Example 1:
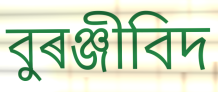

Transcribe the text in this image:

বুৰঞ্জীবিদ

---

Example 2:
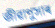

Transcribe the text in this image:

জীৱাণুসাৰ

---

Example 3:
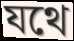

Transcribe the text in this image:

যথে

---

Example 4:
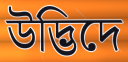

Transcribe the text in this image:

উদ্ভিদে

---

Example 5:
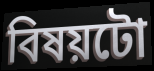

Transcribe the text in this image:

বিষয়টো